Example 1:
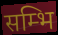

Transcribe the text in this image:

सम्भि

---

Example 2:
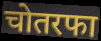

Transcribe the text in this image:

चोतरफा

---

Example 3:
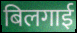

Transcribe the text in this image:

बिलगाई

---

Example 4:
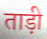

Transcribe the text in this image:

ताड़ी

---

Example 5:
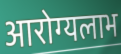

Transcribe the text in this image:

आरोग्यलाभ